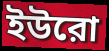
ইউরো